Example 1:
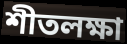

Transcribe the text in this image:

শীতলক্ষা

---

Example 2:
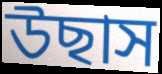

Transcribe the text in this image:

উছাস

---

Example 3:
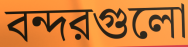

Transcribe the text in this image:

বন্দরগুলো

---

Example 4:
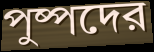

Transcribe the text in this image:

পুষ্পদের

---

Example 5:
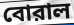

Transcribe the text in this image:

বোরাল